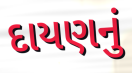
દાયણનું